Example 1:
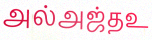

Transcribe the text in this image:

அல்அஜ்தஉ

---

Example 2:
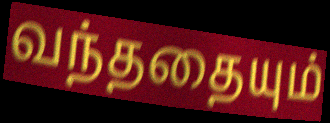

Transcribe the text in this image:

வந்ததையும்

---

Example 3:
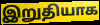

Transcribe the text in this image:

இறுதியாக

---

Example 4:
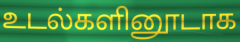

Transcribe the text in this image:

உடல்களினூடாக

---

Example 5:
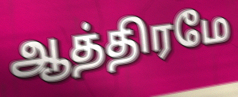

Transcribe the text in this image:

ஆத்திரமே